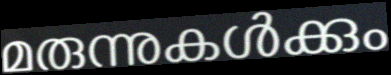
മരുന്നുകൾക്കും